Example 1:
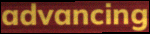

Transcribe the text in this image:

advancing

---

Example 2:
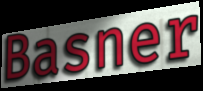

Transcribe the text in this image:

Basner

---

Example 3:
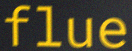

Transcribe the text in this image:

flue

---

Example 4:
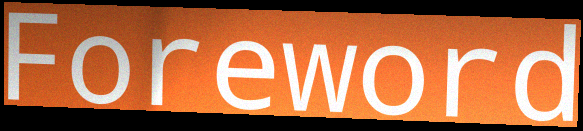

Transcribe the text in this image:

Foreword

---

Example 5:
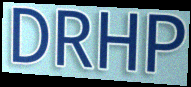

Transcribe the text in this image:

DRHP